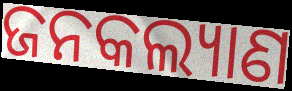
ଜନକଲ୍ୟାଣ